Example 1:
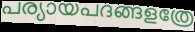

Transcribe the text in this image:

പര്യായപദങ്ങളത്രേ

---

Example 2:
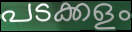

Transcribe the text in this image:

പടക്കളം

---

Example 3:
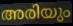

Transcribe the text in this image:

അരിയും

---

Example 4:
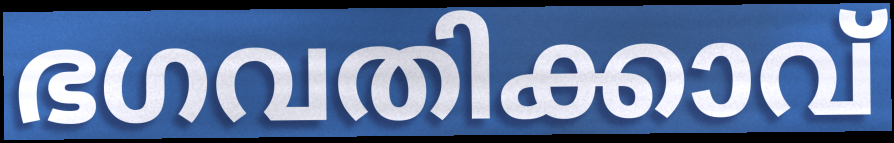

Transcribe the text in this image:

ഭഗവതിക്കാവ്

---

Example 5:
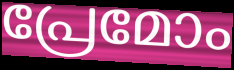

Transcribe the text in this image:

പ്രേമോം